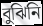
বুঝিনি